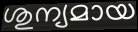
ശുന്യമായ